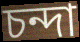
চন্দা